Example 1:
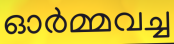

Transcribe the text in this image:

ഓർമ്മവച്ച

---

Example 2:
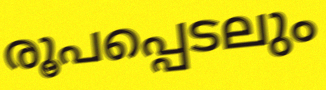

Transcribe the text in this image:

രൂപപ്പെടലും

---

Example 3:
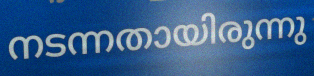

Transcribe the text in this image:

നടന്നതായിരുന്നു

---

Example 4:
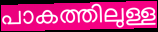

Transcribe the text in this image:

പാകത്തിലുള്ള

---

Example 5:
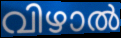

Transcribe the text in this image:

വിഴാൽ